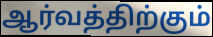
ஆர்வத்திற்கும்